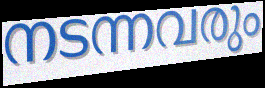
നടന്നവരും